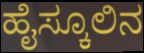
ಹೈಸ್ಕೂಲಿನ